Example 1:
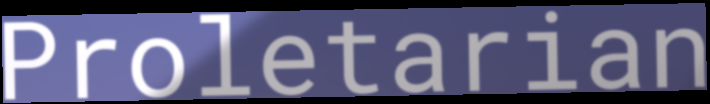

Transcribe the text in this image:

Proletarian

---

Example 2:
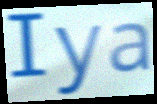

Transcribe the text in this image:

Iya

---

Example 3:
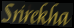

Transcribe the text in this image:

Srirekha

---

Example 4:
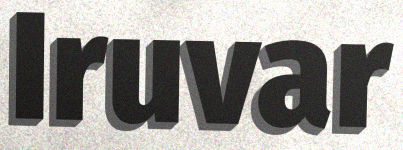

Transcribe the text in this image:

Iruvar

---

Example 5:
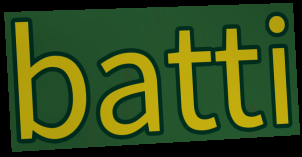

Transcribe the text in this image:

batti